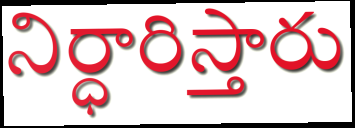
నిర్ధారిస్తారు